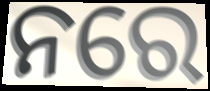
ନରେ